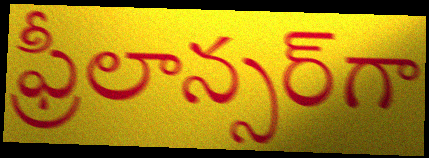
ఫ్రీలాన్సర్‌గా